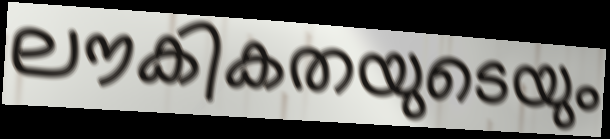
ലൗകികതയുടെയും